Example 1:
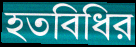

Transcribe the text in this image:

হতবিধির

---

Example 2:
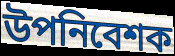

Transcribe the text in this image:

উপনিবেশক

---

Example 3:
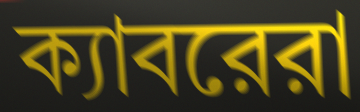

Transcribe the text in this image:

ক্যাবরেরা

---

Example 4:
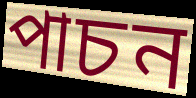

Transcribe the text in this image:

পাচন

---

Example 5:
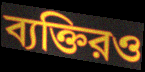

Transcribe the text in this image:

ব্যক্তিরও